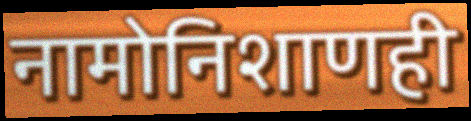
नामोनिशाणही